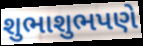
શુભાશુભપણે